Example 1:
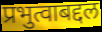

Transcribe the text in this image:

प्रभुत्वाबद्दल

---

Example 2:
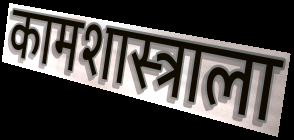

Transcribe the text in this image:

कामशास्त्राला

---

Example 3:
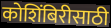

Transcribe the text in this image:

कोशिंबिरीसाठी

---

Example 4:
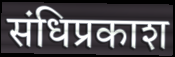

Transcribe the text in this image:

संधिप्रकाश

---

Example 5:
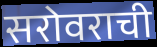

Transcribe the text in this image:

सरोवराची